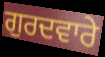
ਗੁਰਦਵਾਰੇ